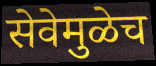
सेवेमुळेच